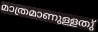
മാത്രമാണുള്ളതു്